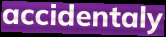
accidentaly